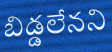
బిడ్డలేనని